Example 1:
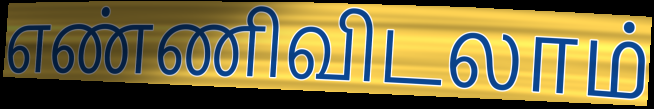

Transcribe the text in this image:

எண்ணிவிடலாம்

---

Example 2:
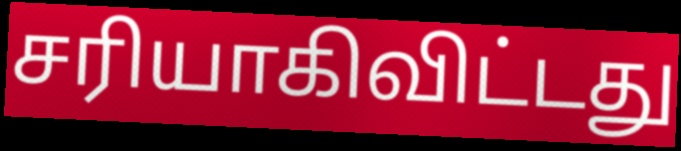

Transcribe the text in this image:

சரியாகிவிட்டது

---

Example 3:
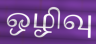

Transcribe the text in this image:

ஒழிவு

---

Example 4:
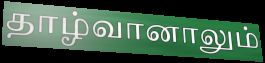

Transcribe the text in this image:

தாழ்வானாலும்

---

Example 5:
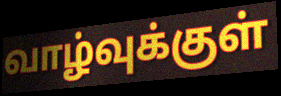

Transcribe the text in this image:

வாழ்வுக்குள்